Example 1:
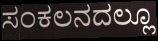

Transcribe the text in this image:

ಸಂಕಲನದಲ್ಲೂ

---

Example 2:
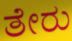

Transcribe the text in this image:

ತೇರು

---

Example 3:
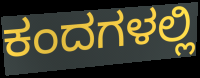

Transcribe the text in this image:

ಕಂದಗಳಲ್ಲಿ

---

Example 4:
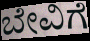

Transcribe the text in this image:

ಬೇವಿಗೆ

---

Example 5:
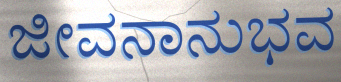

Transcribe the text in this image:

ಜೀವನಾನುಭವ